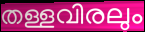
തള്ളവിരലും